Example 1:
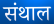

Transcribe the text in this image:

संथाल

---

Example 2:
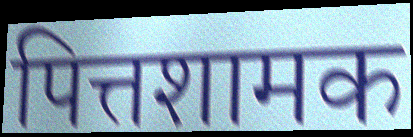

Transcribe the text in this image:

पित्तशामक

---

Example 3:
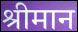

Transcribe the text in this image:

श्रीमान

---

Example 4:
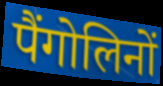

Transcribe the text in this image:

पैंगोलिनों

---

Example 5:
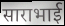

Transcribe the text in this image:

साराभाई